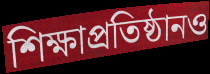
শিক্ষাপ্রতিষ্ঠানও